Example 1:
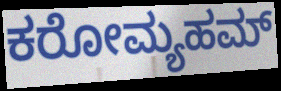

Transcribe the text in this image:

ಕರೋಮ್ಯಹಮ್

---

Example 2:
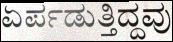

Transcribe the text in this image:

ಏರ್ಪಡುತ್ತಿದ್ದವು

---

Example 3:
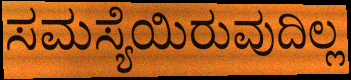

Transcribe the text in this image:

ಸಮಸ್ಯೆಯಿರುವುದಿಲ್ಲ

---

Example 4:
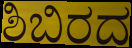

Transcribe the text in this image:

ಶಿಬಿರದ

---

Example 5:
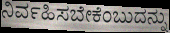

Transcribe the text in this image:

ನಿರ್ವಹಿಸಬೇಕೆಂಬುದನ್ನು